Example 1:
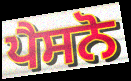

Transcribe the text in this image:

ਪੈਸਨੋ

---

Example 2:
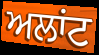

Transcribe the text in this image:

ਅਲਾਂਟ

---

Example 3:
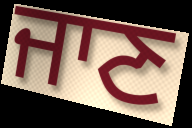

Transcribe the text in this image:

ਜਾਣ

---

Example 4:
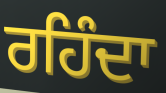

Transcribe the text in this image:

ਰਹਿੰਦਾ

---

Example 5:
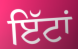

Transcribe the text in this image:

ਇੱਟਾਂ